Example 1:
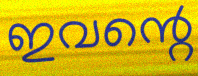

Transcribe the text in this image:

ഇവന്റെ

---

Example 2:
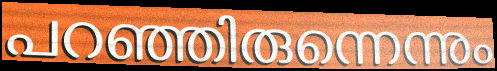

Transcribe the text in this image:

പറഞ്ഞിരുന്നെന്നും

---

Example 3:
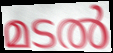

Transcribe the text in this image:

മടൽ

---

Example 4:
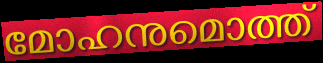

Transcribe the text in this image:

മോഹനുമൊത്ത്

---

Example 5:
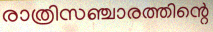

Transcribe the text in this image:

രാത്രിസഞ്ചാരത്തിന്റെ